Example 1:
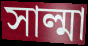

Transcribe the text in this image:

সাল্মা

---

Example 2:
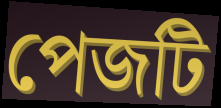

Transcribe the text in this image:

পেজটি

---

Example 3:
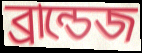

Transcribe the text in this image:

ব্রান্ডেজ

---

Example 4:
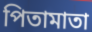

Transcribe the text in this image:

পিতামাতা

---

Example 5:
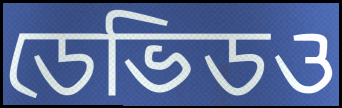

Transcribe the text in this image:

ডেভিডও